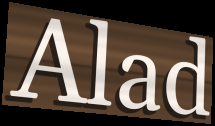
Alad